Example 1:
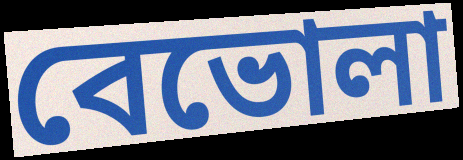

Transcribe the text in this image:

বেভোলা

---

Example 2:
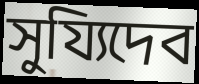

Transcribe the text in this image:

সুয্যিদেব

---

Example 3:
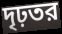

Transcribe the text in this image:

দৃঢ়তর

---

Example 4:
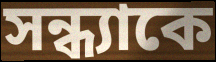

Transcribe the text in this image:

সন্ধ্যাকে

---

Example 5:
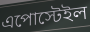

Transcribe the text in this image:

এপোস্টেইল